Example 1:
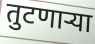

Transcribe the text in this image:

तुटणार्‍या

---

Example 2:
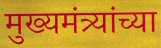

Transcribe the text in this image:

मुख्यमंत्र्यांच्या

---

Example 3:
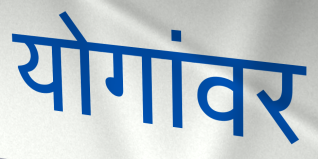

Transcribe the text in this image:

योगांवर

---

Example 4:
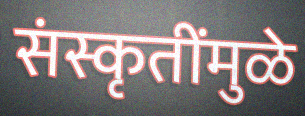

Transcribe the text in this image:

संस्कृतींमुळे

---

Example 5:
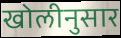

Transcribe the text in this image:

खोलीनुसार